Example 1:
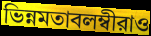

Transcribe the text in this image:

ভিন্নমতাবলম্বীরাও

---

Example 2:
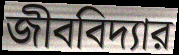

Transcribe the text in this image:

জীববিদ্যার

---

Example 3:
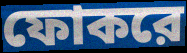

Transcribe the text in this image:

ফোকরে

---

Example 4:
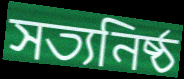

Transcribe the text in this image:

সত্যনিষ্ঠ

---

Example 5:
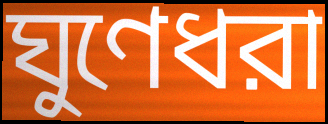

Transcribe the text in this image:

ঘুণেধরা